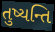
તુષ્યન્તિ